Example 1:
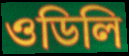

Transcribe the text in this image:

ওডিলি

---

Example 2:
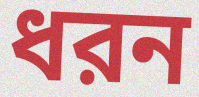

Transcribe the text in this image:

ধরন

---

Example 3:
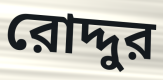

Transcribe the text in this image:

রোদ্দুর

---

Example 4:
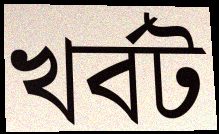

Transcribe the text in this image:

খর্বট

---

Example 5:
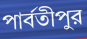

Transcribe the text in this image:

পার্বতীপুর